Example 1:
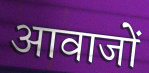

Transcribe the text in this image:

आवाजों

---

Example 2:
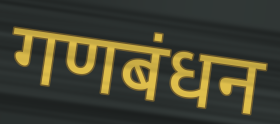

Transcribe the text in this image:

गणबंधन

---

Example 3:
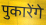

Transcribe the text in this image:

पुकारेंगे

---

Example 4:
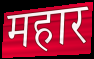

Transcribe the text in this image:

महार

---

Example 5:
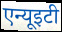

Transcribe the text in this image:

एन्यूइटी